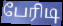
பேரிடி